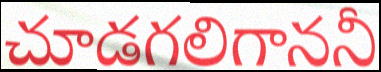
చూడగలిగాననీ